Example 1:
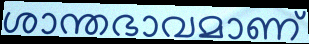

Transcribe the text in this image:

ശാന്തഭാവമാണ്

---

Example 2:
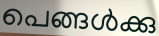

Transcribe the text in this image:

പെങ്ങൾക്കു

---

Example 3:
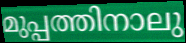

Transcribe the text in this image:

മുപ്പത്തിനാലു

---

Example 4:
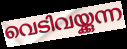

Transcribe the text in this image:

വെടിവയ്ക്കുന്ന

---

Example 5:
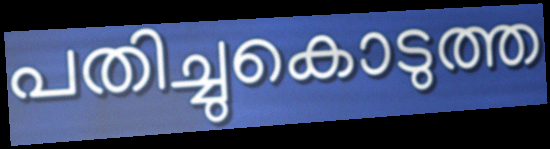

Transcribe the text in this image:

പതിച്ചുകൊടുത്ത